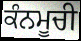
ਕੰਨਮੂਚੀ